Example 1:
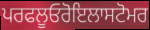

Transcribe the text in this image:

ਪਰਫਲੂਓਰੋਇਲਾਸਟੋਮਰ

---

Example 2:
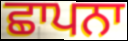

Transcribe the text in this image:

ਛਾਪਨਾ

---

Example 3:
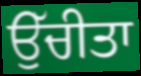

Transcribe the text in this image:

ਉੱਚੀਤਾ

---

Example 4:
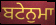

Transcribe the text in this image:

ਬਟੇਨੁਮਾ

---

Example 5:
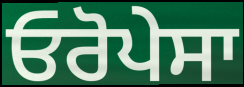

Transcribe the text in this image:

ਓਰੋਪੇਸਾ